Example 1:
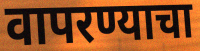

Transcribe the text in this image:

वापरण्याचा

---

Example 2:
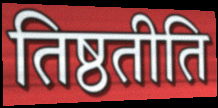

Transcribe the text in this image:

तिष्ठतीति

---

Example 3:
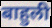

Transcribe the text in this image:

बाहुली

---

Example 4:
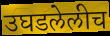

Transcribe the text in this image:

उघडलेलीच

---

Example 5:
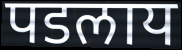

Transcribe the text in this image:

पडलाय